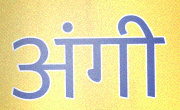
अंगी